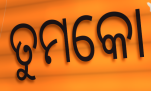
ତୁମକୋ